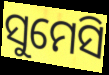
ସୁମେସି